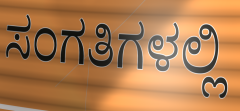
ಸಂಗತಿಗಳಲ್ಲಿ